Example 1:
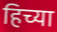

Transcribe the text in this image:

हिच्या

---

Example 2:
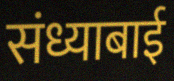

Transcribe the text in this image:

संध्याबाई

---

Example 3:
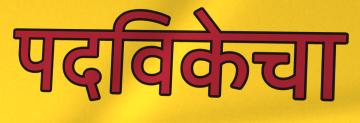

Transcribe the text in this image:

पदविकेचा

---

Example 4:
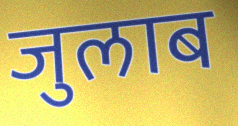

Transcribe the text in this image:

जुलाब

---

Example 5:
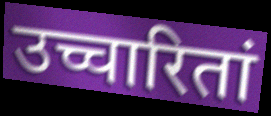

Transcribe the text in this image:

उच्चारितां